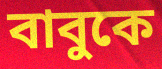
বাবুকে